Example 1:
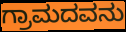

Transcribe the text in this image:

ಗ್ರಾಮದವನು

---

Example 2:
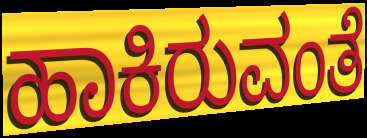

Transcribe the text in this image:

ಹಾಕಿರುವಂತೆ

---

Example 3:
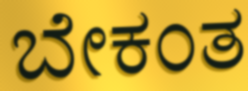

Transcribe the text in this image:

ಬೇಕಂತ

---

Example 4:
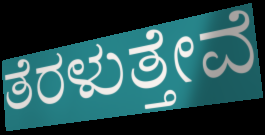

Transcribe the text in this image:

ತೆರಳುತ್ತೇವೆ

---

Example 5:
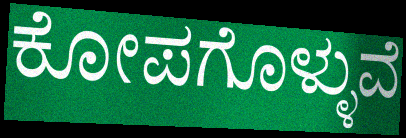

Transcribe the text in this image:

ಕೋಪಗೊಳ್ಳುವೆ